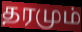
தரமும்